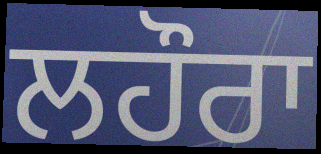
ਲਹੌਰਾ